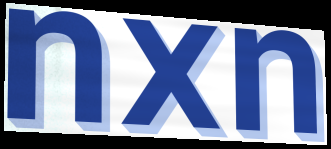
nxn